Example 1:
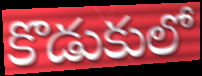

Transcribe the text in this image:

కొడుకులో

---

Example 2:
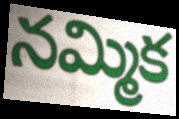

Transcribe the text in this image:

నమ్మిక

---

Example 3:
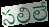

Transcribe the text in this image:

సలిలే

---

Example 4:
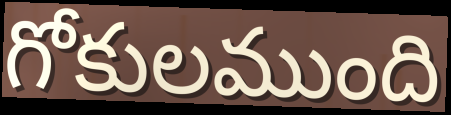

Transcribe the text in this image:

గోకులముంది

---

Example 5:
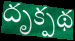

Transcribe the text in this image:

దృక్పథ